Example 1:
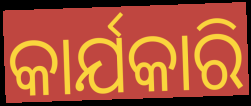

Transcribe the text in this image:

କାର୍ଯକାରି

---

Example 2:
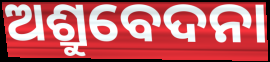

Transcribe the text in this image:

ଅଶ୍ରୁବେଦନା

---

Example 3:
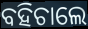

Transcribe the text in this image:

ବହିଚାଲେ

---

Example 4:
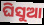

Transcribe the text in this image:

ଘିସୁଆ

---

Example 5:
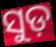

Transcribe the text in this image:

ସୁଡ଼